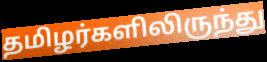
தமிழர்களிலிருந்து